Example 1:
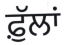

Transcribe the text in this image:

ਫ਼ੁੱਲਾਂ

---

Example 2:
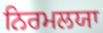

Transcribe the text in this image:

ਨਿਰਮਲਯਾ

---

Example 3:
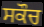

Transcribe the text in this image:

ਸਕੌਚ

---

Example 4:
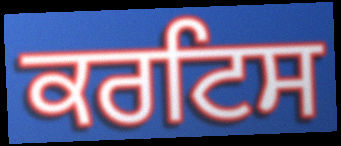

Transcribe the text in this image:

ਕਰਟਿਸ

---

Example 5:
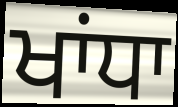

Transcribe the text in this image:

ਖਾਂਧਾ